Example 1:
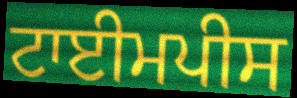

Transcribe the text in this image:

ਟਾਈਮਪੀਸ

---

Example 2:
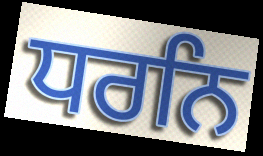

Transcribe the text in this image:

ਧਰਨਿ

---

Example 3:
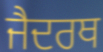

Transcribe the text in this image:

ਜੈਦਰਥ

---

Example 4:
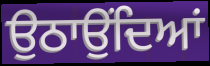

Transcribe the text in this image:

ਉਠਾਉਂਦਿਆਂ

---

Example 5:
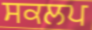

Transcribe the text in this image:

ਸਕਲਪ